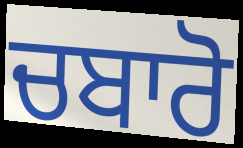
ਚਬਾਰੋ